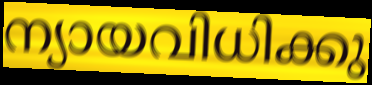
ന്യായവിധിക്കു